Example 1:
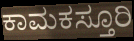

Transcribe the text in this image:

ಕಾಮಕಸ್ತೂರಿ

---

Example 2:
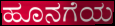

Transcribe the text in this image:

ಹೂನಗೆಯ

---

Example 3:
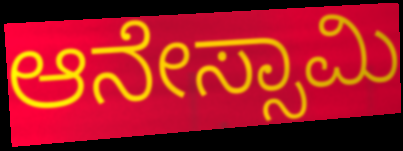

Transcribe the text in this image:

ಆನೇಸ್ಸಾಮಿ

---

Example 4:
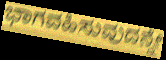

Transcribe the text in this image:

ಭಾಗವಹಿಸುವುದನ್ನೇ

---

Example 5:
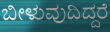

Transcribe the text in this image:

ಬೀಳುವುದಿದ್ದರೆ